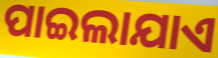
ପାଇଲାଯାଏ